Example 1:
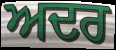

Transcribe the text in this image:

ਅਦਰ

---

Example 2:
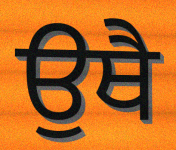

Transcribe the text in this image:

ਉਥੈ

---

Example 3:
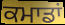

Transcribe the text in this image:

ਕਮਾਡਾਂ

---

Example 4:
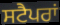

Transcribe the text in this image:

ਸਟੈਪਰਾਂ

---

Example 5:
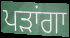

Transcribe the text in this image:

ਪੜਾਂਗਾ